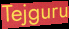
Tejguru